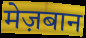
मेज़बान